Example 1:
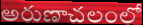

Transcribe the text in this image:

అరుణాచలంలో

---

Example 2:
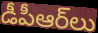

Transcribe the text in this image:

డీపీఆర్‌లు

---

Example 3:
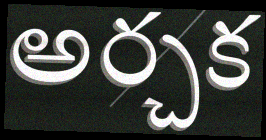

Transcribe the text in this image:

అర్చక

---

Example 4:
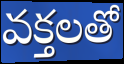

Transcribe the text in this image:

వక్తలతో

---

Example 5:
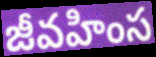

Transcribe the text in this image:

జీవహింస